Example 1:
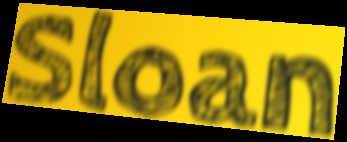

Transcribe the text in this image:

Sloan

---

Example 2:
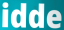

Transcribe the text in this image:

idde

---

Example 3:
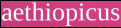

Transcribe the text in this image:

aethiopicus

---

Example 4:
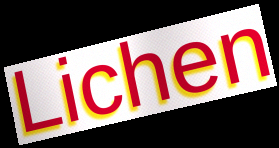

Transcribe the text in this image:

Lichen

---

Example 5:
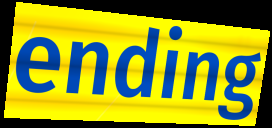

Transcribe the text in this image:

ending